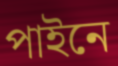
পাইনে